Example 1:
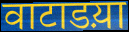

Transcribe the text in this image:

वाटाडय़ा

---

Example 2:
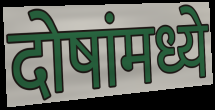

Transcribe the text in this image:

दोषांमध्ये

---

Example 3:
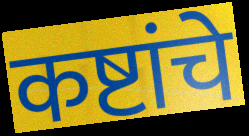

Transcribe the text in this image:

कष्टांचे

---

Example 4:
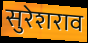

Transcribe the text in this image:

सुरेशराव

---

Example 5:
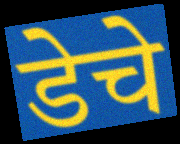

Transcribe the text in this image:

डेचे